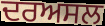
ਦਰਅਸਲ